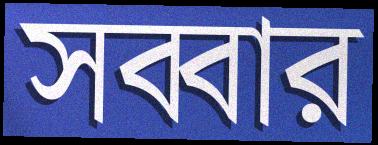
সব্বার